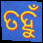
ତହୁଁ